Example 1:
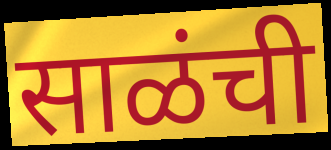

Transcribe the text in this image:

साळंची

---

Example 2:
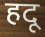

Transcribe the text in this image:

हदू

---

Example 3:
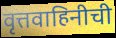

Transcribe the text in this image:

वृत्तवाहिनीची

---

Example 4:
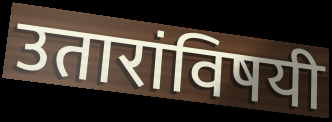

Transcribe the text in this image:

उतारांविषयी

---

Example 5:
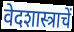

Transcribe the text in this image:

वेदशास्त्राचें